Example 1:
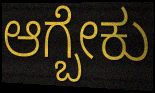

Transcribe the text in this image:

ಆಗ್ಬೇಕು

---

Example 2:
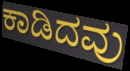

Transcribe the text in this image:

ಕಾಡಿದವು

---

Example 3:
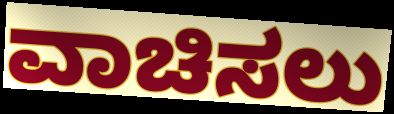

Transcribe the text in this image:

ವಾಚಿಸಲು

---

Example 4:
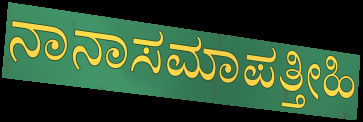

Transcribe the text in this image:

ನಾನಾಸಮಾಪತ್ತೀಹಿ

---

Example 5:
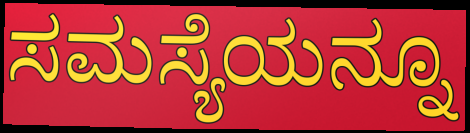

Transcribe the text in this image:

ಸಮಸ್ಯೆಯನ್ನೂ